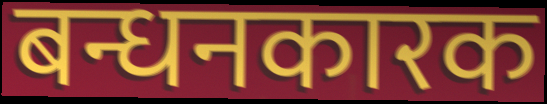
बन्धनकारक